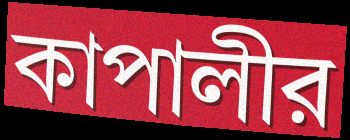
কাপালীর